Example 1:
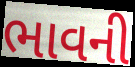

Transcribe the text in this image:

ભાવની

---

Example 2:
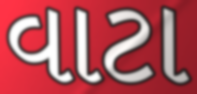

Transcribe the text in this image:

વાટા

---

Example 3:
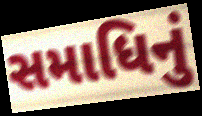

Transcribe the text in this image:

સમાધિનું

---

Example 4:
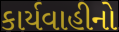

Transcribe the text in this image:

કાર્યવાહીનો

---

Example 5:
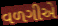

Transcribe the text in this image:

વળગીએ